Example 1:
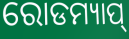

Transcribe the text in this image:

ରୋଡମ୍ୟାପ୍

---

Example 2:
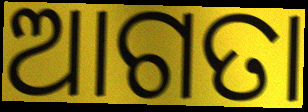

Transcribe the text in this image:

ଆଗତା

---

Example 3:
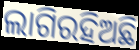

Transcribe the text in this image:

ଲାଗିରହିଅଛି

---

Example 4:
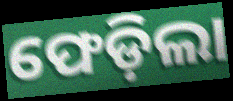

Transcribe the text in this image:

ଫେଡ଼ିଲା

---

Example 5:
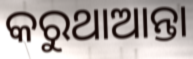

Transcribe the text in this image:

କରୁଥାଆନ୍ତା